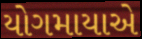
યોગમાયાએ